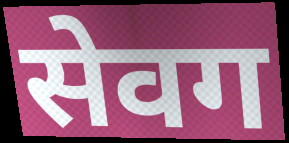
सेवग